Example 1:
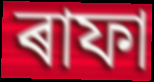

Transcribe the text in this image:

ৰাফা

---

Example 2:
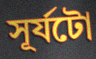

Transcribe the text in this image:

সূৰ্যটো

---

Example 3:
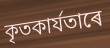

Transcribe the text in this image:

কৃতকাৰ্যতাৰে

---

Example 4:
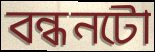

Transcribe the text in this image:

বন্ধনটো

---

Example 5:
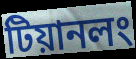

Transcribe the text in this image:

টিয়ানলং